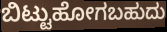
ಬಿಟ್ಟುಹೋಗಬಹುದು